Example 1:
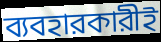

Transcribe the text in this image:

ব্যবহারকারীই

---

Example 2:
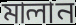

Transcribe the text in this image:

মালান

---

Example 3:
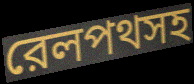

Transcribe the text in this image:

রেলপথসহ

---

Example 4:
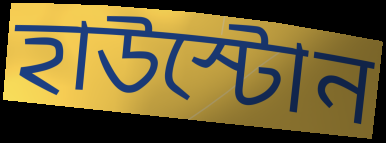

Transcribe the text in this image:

হাউস্টোন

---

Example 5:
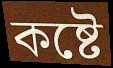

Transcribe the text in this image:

কষ্টে